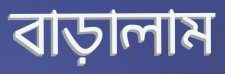
বাড়ালাম